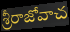
శ్రీరాజోవాచ